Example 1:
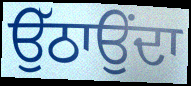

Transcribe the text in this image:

ਉੱਠਾਉਂਦਾ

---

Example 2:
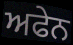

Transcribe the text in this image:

ਅਫੇਨ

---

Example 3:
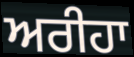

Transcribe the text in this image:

ਅਰੀਹਾ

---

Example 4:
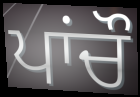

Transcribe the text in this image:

ਪਾਂਚੌ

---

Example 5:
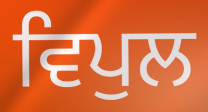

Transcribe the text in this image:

ਵਿਪੁਲ